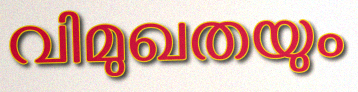
വിമുഖതയും